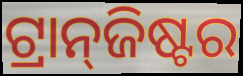
ଟ୍ରାନ୍‍ଜିଷ୍ଟର